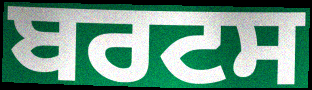
ਬਰਟਸ